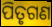
ପିତୃଗଣ